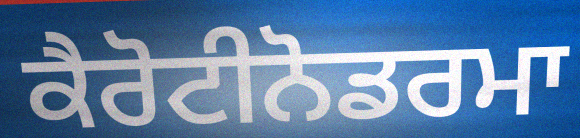
ਕੈਰੋਟੀਨੋਡਰਮਾ